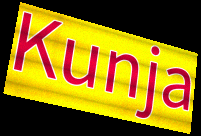
Kunja